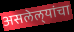
असलेल्यांचा